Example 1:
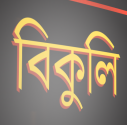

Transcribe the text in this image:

বিকুলি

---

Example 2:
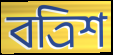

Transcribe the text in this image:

বত্রিশ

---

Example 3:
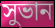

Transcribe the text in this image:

সুভান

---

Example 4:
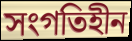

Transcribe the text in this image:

সংগতিহীন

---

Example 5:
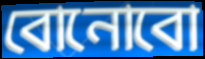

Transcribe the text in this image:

বোনোবো